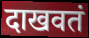
दाखवतं